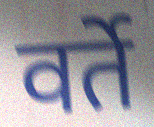
वर्ते